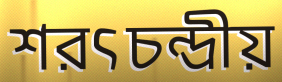
শরৎচন্দ্রীয়